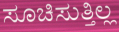
ಸೂಚಿಸುತ್ತಿಲ್ಲ